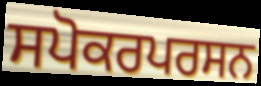
ਸਪੋਕਰਪਰਸਨ